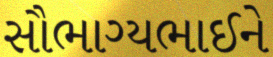
સૌભાગ્યભાઈને